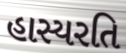
હાસ્યરતિ